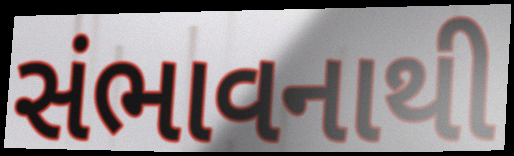
સંભાવનાથી